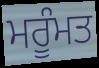
ਮਰੂੰਮਤ